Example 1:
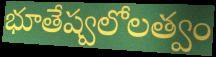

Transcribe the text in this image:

భూతేష్వలోలత్వం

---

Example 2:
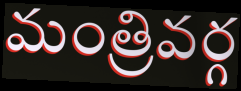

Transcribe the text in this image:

మంత్రివర్గ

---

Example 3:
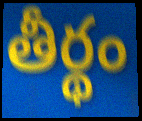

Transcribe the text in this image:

తీర్థం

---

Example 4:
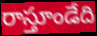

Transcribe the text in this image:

రాస్తూండేది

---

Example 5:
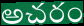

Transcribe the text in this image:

అచరం